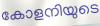
കോളനിയുടെ